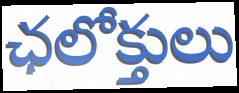
ఛలోక్తులు